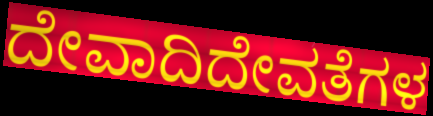
ದೇವಾದಿದೇವತೆಗಳ